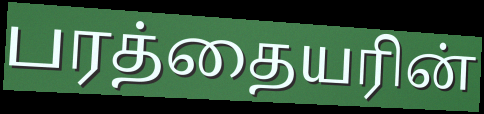
பரத்தையரின்